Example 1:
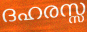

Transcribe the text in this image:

ദഹരസ്സ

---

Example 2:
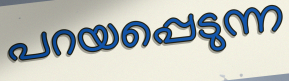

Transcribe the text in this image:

പറയപ്പെടുന്ന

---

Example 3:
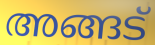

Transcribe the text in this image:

അങ്ങട്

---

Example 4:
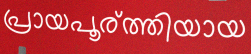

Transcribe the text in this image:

പ്രായപൂര്ത്തിയായ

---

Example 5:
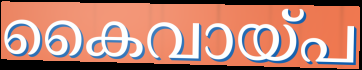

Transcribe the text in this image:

കൈവായ്പ